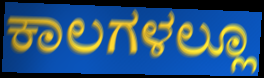
ಕಾಲಗಳಲ್ಲೂ